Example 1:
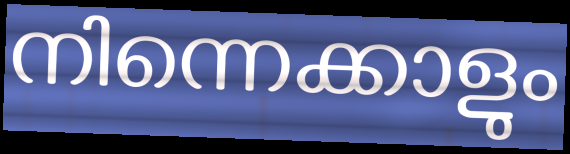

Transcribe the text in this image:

നിന്നെക്കാളും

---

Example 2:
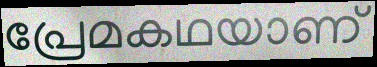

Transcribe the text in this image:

പ്രേമകഥയാണ്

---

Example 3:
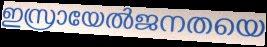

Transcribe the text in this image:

ഇസ്രായേൽജനതയെ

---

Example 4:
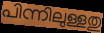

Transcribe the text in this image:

പിന്നിലുള്ളതു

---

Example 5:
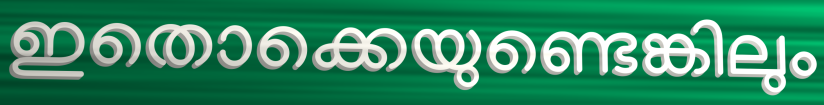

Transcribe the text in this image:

ഇതൊക്കെയുണ്ടെങ്കിലും